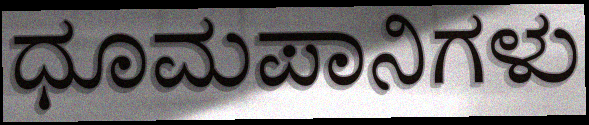
ಧೂಮಪಾನಿಗಳು